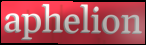
aphelion